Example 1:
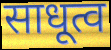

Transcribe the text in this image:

साधूत्व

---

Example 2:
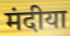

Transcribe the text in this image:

मंदीया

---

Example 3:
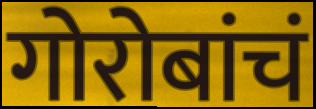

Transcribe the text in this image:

गोरोबांचं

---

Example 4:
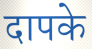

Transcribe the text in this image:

दापके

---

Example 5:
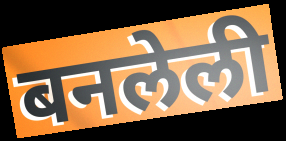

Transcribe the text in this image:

बनलेली